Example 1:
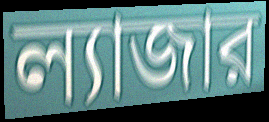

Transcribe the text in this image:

ল্যাজার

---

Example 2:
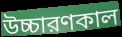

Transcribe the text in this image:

উচ্চারণকাল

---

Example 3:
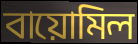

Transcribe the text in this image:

বায়োমিল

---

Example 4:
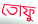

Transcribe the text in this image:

তোফু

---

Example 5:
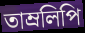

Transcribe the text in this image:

তাম্রলিপি